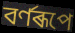
বৰ্ণৰূপে